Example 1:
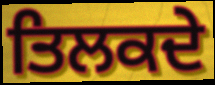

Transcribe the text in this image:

ਤਿਲਕਦੇ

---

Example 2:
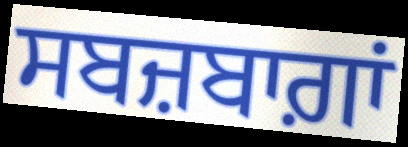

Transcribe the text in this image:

ਸਬਜ਼ਬਾਗ਼ਾਂ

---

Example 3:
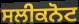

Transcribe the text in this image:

ਸਲੀਕਨੋਟ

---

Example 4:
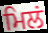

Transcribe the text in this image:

ਮਿਲਂ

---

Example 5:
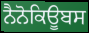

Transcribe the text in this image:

ਨੈਨੋਕਿਊਬਸ